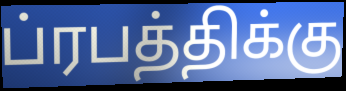
ப்ரபத்திக்கு